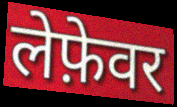
लेफ़ेवर